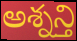
అశ్నన్తి